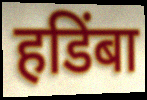
हडिंबा